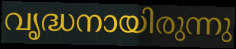
വൃദ്ധനായിരുന്നു